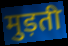
मुड़ती